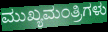
ಮುಖ್ಯಮಂತ್ರಿಗಳು